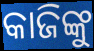
କାଜିଙ୍କୁ